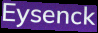
Eysenck